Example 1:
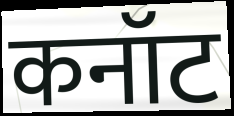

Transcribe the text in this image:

कनॉट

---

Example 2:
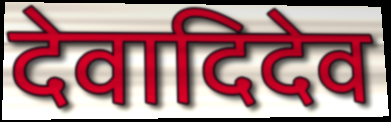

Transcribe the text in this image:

देवादिदेव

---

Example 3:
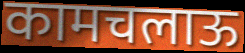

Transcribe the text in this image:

कामचलाऊ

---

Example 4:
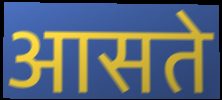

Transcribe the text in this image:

आसते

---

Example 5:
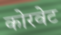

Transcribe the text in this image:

कोरवेट